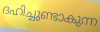
ദഹിച്ചുണ്ടാകുന്ന